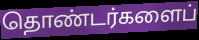
தொண்டர்களைப்